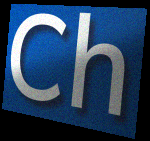
Ch